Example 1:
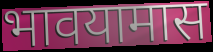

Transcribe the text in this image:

भावयामास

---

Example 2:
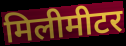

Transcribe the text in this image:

मिलीमीटर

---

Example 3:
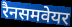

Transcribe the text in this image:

रैनसमवेयर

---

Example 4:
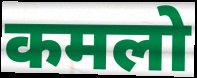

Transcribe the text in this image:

कमलो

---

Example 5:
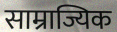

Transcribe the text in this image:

साम्राज्यिक